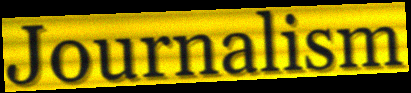
Journalism